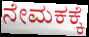
ನೇಮಕಕ್ಕೆ